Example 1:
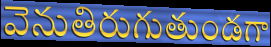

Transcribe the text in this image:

వెనుతిరుగుతుండగా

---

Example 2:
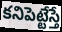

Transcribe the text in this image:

కనిపెట్టేస్తే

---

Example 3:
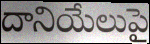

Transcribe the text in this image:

దానియేలుపై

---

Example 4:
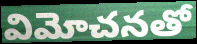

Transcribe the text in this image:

విమోచనతో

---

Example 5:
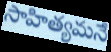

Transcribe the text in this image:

సాహిత్యమనే